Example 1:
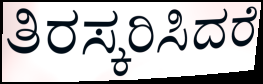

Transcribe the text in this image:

ತಿರಸ್ಕರಿಸಿದರೆ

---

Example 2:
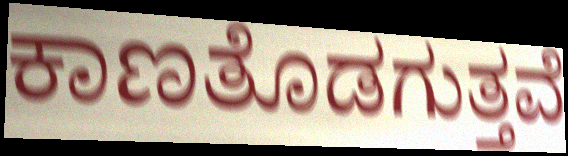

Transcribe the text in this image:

ಕಾಣತೊಡಗುತ್ತವೆ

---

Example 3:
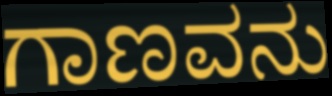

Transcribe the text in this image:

ಗಾಣವನು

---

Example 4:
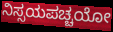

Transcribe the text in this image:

ನಿಸ್ಸಯಪಚ್ಚಯೋ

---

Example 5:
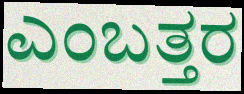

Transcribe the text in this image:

ಎಂಬತ್ತರ